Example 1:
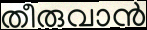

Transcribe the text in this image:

തീരുവാൻ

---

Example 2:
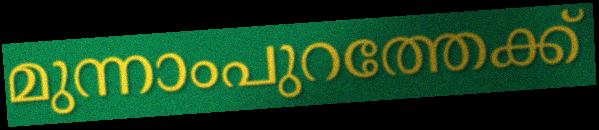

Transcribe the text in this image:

മുന്നാംപുറത്തേക്ക്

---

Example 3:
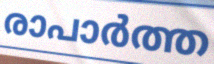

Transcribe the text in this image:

രാപാർത്ത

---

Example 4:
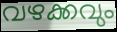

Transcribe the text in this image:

വഴക്കവും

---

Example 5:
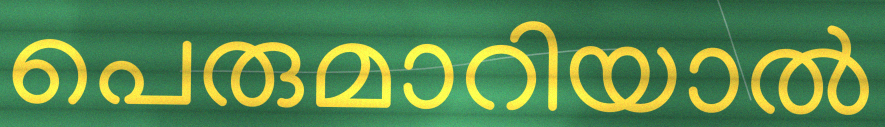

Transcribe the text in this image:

പെരുമാറിയാൽ